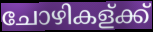
ചോഴികള്ക്ക്